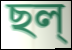
ছল্